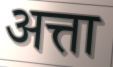
अत्ता